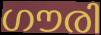
ഗൗരി